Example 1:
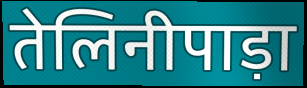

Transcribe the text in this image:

तेलिनीपाड़ा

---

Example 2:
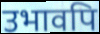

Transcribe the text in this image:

उभावपि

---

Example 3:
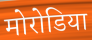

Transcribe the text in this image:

मोरोडिया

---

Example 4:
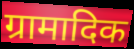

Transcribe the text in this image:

ग्रामादिक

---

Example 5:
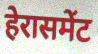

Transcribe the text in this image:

हेरासमेंट